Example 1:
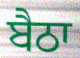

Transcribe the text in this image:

ਬੈਠਾ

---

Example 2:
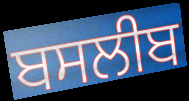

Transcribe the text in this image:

ਬਸਲੀਬ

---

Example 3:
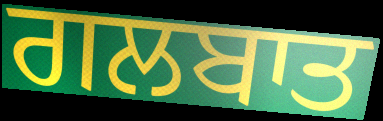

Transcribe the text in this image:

ਗਲਬਾਤ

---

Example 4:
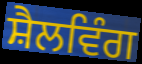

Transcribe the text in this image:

ਸ਼ੈਲਵਿੰਗ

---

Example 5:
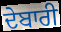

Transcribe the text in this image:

ਦੇਬਾਰੀ